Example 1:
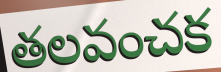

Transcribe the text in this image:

తలవంచక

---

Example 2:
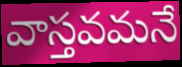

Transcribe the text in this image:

వాస్తవమనే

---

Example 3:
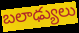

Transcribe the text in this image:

బలాఢ్యులు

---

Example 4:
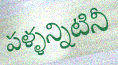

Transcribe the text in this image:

పళ్ళన్నిటినీ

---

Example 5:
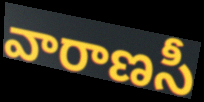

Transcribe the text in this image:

వారాణసీ